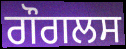
ਗੌਗਲਸ